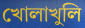
খোলাখুলি